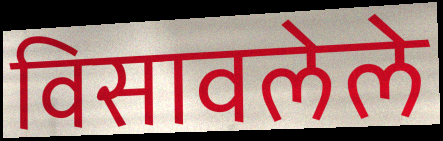
विसावलेले